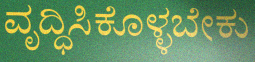
ವೃದ್ಧಿಸಿಕೊಳ್ಳಬೇಕು